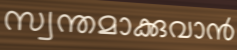
സ്വന്തമാക്കുവാൻ